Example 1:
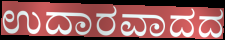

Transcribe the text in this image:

ಉದಾರವಾದದ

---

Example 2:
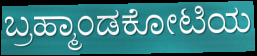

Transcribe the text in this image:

ಬ್ರಹ್ಮಾಂಡಕೋಟಿಯ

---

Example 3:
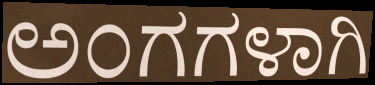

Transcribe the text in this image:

ಅಂಗಗಳಾಗಿ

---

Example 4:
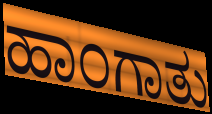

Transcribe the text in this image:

ಹಾಂಗಾತು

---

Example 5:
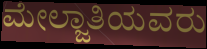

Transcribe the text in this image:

ಮೇಲ್ಜಾತಿಯವರು